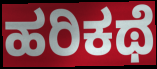
ಹರಿಕಥೆ